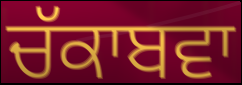
ਚੱਕਾਬਵਾ